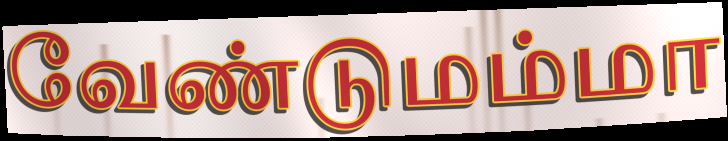
வேண்டுமம்மா